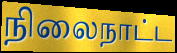
நிலைநாட்ட